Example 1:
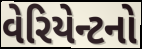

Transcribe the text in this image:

વેરિયેન્ટનો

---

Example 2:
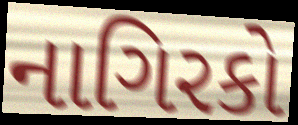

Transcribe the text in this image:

નાગિરકો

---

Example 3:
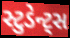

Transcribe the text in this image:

સ્ટુડેન્ટ્સ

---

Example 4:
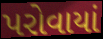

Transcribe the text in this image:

પરોવાયાં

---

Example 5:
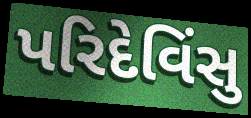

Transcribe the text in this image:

પરિદેવિંસુ